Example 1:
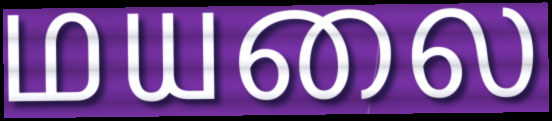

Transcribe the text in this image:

மயலை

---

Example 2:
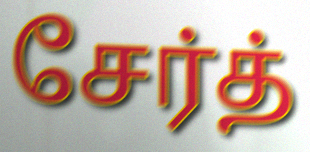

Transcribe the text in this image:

சேர்த்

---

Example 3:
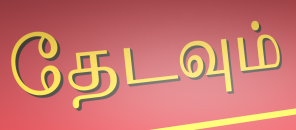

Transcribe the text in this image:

தேடவும்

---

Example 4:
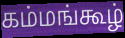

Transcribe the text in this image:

கம்மங்கூழ்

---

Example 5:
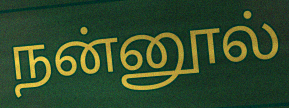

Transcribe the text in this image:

நன்னூல்